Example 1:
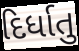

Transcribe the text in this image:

દિર્ધાતુ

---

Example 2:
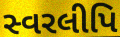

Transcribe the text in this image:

સ્વરલીપિ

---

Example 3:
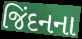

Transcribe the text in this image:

જિંદનના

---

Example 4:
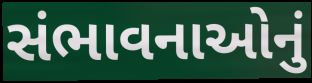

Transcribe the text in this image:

સંભાવનાઓનું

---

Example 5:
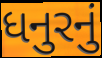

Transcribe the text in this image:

ધનુરનું